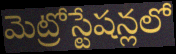
మెట్రోస్టేషన్లలో